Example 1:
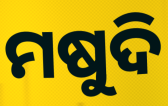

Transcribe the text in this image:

ମଷୁଦି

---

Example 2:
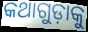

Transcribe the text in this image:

କଥାଗୁଡ଼ାକୁ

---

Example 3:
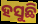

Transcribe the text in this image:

ହସୁଛି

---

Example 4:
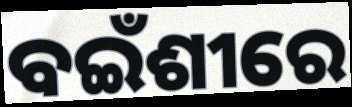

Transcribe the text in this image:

ବଇଁଶୀରେ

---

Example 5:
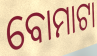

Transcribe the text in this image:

ବୋମାଟା